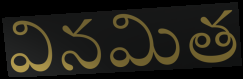
వినమిత